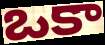
ఒకా